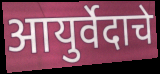
आयुर्वेदाचे